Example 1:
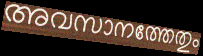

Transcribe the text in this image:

അവസാനത്തേതും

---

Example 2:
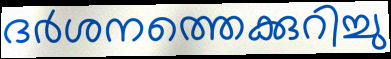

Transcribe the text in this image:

ദർശനത്തെക്കുറിച്ചു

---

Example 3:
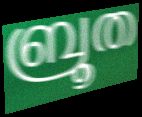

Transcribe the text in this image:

ബ്രൂത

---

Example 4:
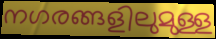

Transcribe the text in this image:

നഗരങ്ങളിലുമുള്ള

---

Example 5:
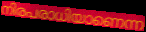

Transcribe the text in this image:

നിരപരാധിയാണെന്ന